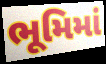
ભૂમિમાં